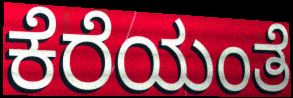
ಕೆರೆಯಂತೆ